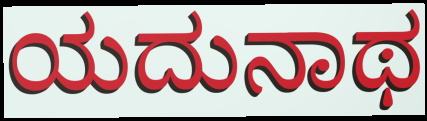
ಯದುನಾಥ